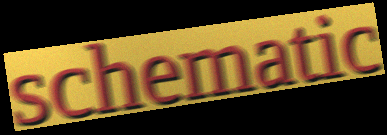
schematic